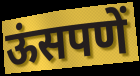
ऊंसपणें